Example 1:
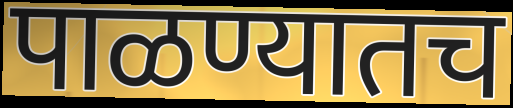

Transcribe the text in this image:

पाळण्यातच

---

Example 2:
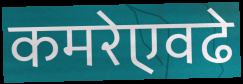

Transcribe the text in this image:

कमरेएवढे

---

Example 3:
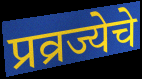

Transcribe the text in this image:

प्रव्रज्येचे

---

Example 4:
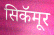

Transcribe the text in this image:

सिकॅमूर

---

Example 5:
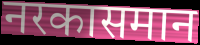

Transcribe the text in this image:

नरकासमान